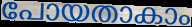
പോയതാകാം